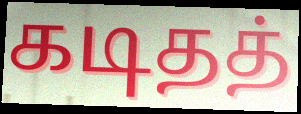
கடிதத்